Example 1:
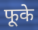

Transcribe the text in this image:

फूके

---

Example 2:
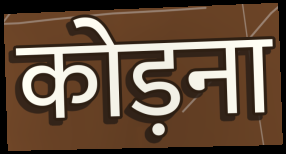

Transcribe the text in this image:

कोड़ना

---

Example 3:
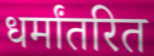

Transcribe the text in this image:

धर्मांतरित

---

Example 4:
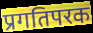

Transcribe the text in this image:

प्रगतिपरक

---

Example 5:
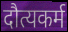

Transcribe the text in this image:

दौत्यकर्म